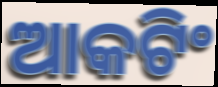
ଆକଟିଂ